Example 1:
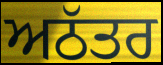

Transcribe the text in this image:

ਅਠੱਤਰ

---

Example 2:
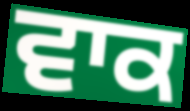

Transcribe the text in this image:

ਵਾਕ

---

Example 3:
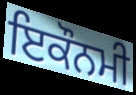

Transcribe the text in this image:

ਇਕੌਨਮੀ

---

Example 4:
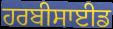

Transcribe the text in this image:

ਹਰਬੀਸਾਈਡ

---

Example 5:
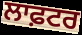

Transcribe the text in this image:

ਲਾਫ਼ਟਰ